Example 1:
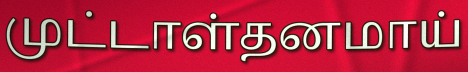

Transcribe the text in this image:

முட்டாள்தனமாய்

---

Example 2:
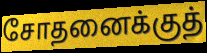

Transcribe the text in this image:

சோதனைக்குத்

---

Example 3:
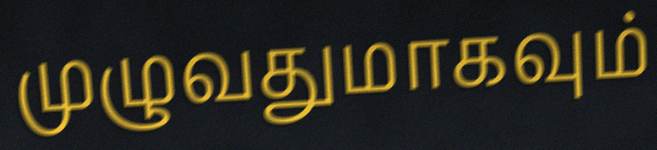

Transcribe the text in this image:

முழுவதுமாகவும்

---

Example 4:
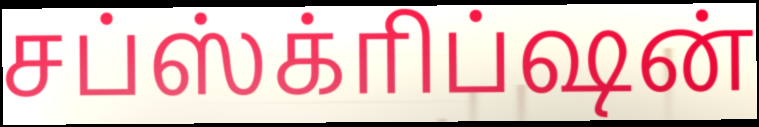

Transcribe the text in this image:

சப்ஸ்க்ரிப்ஷன்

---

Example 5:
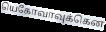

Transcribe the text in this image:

யெகோவாவுக்கென